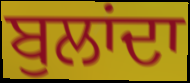
ਬੁਲਾਂਦਾ